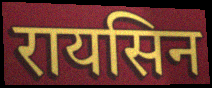
रायसिन